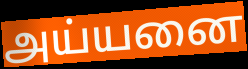
அய்யனை